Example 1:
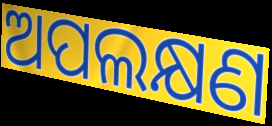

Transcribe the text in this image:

ଅପଲକ୍ଷଣ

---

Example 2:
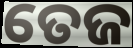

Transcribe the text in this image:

ତେଜ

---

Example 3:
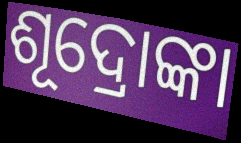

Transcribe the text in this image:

ଶୂଦ୍ରୋଙ୍କା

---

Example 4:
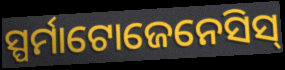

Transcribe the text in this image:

ସ୍ପର୍ମାଟୋଜେନେସିସ୍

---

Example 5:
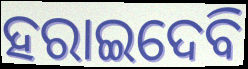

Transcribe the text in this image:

ହରାଇଦେବି